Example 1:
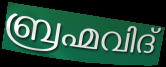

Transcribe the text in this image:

ബ്രഹ്മവിദ്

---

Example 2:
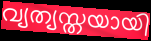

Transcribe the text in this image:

വ്യത്യസ്തയായി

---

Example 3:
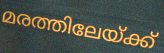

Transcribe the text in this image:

മരത്തിലേയ്ക്ക്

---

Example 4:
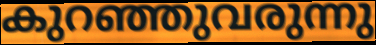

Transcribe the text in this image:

കുറഞ്ഞുവരുന്നു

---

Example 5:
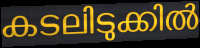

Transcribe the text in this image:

കടലിടുക്കിൽ